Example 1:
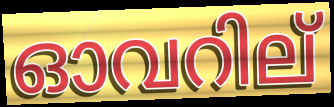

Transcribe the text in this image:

ഓവറില്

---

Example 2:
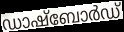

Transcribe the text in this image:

ഡാഷ്ബോർഡ്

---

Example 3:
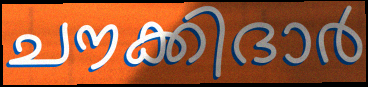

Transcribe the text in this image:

ചൗക്കിദാർ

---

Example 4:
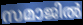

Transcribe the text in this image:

സമാജിൽ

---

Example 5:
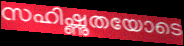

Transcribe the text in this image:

സഹിഷ്ണുതയോടെ